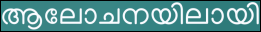
ആലോചനയിലായി